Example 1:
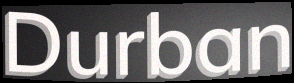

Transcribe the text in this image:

Durban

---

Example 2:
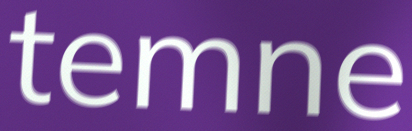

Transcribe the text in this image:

temne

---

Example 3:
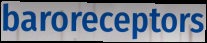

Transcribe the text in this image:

baroreceptors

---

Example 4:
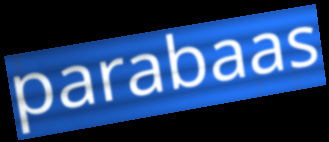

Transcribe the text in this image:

parabaas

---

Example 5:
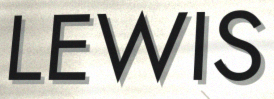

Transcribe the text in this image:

LEWIS